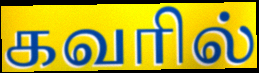
கவரில்